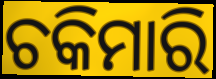
ଚକିମାରି